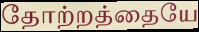
தோற்றத்தையே